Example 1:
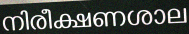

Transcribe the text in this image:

നിരീക്ഷണശാല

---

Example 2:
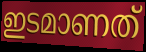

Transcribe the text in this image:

ഇടമാണത്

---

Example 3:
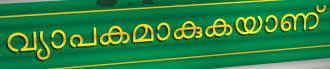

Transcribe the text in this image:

വ്യാപകമാകുകയാണ്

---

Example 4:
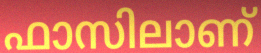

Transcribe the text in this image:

ഫാസിലാണ്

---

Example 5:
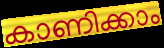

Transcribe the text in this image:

കാണിക്കാം